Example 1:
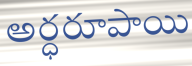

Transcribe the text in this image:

అర్ధరూపాయి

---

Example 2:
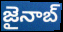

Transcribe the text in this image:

జైనాబ్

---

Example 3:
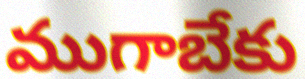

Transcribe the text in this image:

ముగాబేకు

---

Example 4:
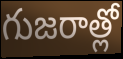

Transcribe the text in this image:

గుజరాత్లో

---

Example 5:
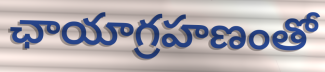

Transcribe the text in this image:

ఛాయాగ్రహణంతో